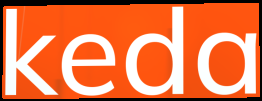
keda